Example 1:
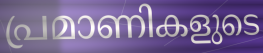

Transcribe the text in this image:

പ്രമാണികളുടെ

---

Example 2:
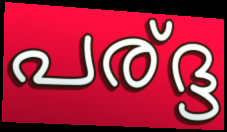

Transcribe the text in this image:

പര്ദ്ദ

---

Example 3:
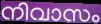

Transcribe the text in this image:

നിവാസം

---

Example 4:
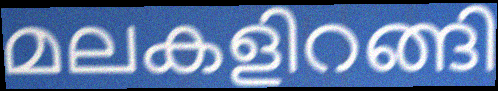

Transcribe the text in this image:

മലകളിറങ്ങി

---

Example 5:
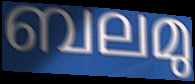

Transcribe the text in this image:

ബലമു